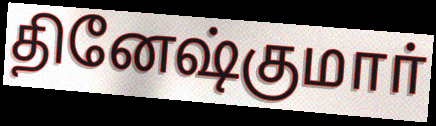
தினேஷ்குமார்